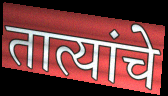
तात्यांचे